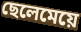
ছেলেমেয়ে